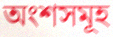
অংশসমূহ